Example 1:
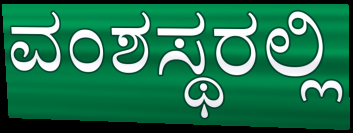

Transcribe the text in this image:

ವಂಶಸ್ಥರಲ್ಲಿ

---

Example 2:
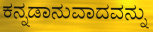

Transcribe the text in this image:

ಕನ್ನಡಾನುವಾದವನ್ನು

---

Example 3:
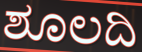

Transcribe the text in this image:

ಶೂಲದಿ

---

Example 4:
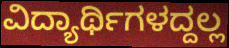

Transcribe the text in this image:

ವಿದ್ಯಾರ್ಥಿಗಳದ್ದಲ್ಲ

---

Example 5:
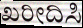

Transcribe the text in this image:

ಖರೀದಿಸಿ